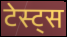
टेस्ट्स